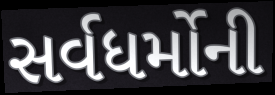
સર્વધર્મોની